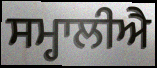
ਸਮ੍ਹ੍ਹਾਲੀਐ